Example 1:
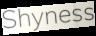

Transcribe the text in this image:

Shyness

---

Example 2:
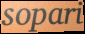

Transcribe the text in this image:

sopari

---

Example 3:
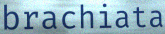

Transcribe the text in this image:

brachiata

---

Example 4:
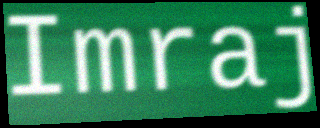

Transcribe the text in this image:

Imraj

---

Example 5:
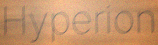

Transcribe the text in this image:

Hyperion